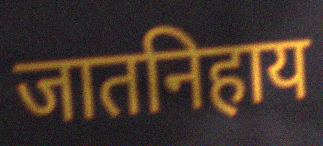
जातनिहाय